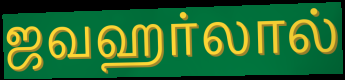
ஜவஹர்லால்